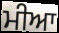
ਮੀਆ